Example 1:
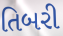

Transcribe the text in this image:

તિબરી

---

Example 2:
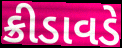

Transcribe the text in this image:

ક્રીડાવડે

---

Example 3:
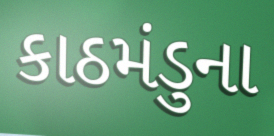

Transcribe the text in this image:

કાઠમંડુના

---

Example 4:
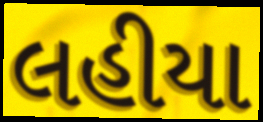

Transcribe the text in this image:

લહીયા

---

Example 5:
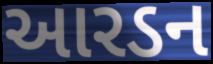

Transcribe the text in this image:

આરડન